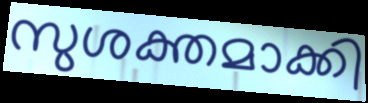
സുശക്തമാക്കി